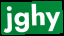
jghy